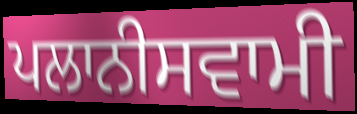
ਪਲਾਨੀਸਵਾਮੀ